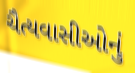
ચૈત્યવાસીઓનું